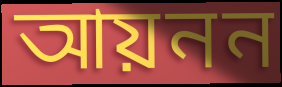
আয়নন